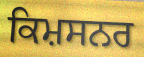
ਕਿਮ਼ਸਨਰ